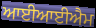
ਆਈਆਈਐਮ